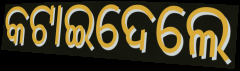
କଟାଇଦେଲେ